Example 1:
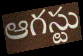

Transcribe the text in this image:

ఆగస్టు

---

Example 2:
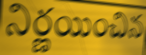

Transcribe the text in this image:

నిర్ణయించిన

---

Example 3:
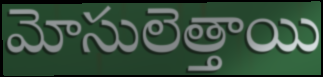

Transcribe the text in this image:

మోసులెత్తాయి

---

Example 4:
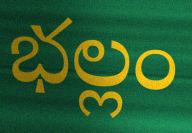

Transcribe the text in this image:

భల్లం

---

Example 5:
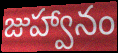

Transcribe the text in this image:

జుహ్వానం